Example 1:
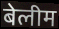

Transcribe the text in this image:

बेलीम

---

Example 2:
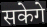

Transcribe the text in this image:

सकेगे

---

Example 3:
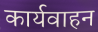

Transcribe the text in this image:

कार्यवाहन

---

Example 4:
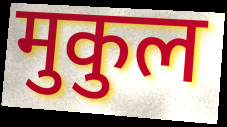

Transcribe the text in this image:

मुकुल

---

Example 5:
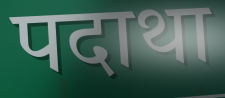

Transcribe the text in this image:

पदाथा